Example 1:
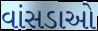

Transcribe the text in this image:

વાંસડાઓ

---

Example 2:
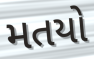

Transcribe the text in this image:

મતયો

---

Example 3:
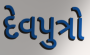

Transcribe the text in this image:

દેવપુત્રો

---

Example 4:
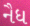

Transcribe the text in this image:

નૈધ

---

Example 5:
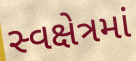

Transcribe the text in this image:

સ્વક્ષેત્રમાં